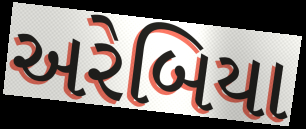
અરેબિયા